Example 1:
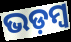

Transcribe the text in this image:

ଭଡ଼ମ୍ବ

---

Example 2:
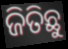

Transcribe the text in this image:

ଜିତିଛୁ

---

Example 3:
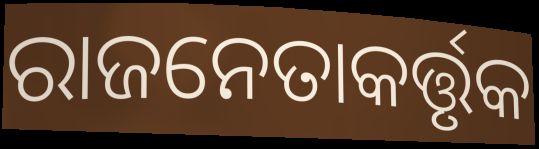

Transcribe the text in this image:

ରାଜନେତାକର୍ତ୍ତୃକ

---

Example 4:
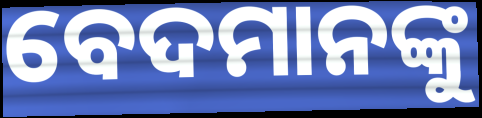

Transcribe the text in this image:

ବେଦମାନଙ୍କୁ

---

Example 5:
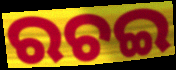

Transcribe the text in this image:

ରଚଇ